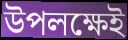
উপলক্ষেই